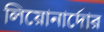
লিয়োনার্দোর